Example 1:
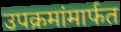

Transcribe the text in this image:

उपक्रमांमार्फत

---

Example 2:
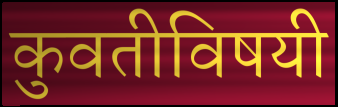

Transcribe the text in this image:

कुवतीविषयी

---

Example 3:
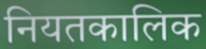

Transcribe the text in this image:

नियतकालिक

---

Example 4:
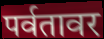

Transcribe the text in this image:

पर्वतावर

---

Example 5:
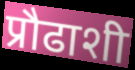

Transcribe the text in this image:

प्रौढाशी